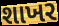
શાખર